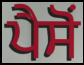
ਪੈਸੋਂ